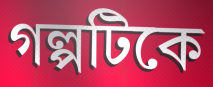
গল্পটিকে